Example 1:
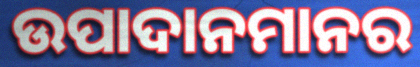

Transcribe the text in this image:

ଉପାଦାନମାନର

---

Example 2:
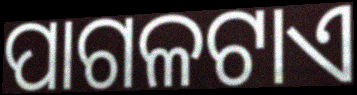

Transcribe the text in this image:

ପାଗଳଟାଏ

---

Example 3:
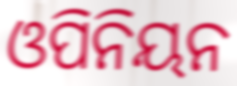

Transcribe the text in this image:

ଓପିନିୟନ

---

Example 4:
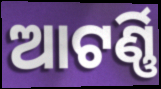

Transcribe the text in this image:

ଆଟର୍ଣ୍ଣି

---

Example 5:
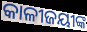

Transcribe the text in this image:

କାଳୀଜୟୀଙ୍କ